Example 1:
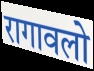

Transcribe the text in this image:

रागावलो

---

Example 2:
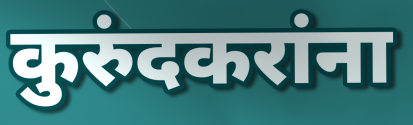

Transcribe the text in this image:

कुरुंदकरांना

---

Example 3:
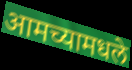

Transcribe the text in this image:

आमच्यामधले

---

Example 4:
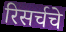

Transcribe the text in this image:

रिसर्चचे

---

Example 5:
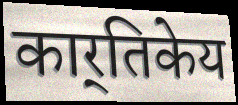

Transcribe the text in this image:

कार्तिकेय